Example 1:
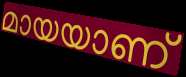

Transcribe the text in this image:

മായയാണ്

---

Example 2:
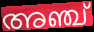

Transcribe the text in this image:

അഞ്ച്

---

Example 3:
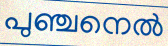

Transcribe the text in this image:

പുഞ്ചനെൽ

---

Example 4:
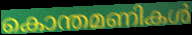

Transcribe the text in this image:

കൊന്തമണികൾ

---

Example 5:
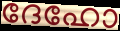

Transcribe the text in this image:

ദേഹോ